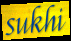
sukhi